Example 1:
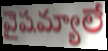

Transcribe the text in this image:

వైషమ్యాలే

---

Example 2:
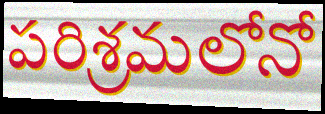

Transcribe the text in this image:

పరిశ్రమలోనో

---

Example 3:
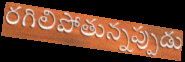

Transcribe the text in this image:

రగిలిపోతున్నప్పుడు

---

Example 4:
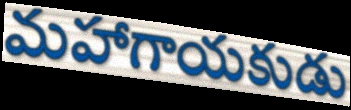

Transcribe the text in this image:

మహాగాయకుడు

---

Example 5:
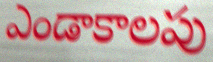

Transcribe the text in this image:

ఎండాకాలపు